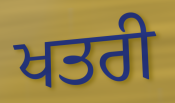
ਖਤਰੀ